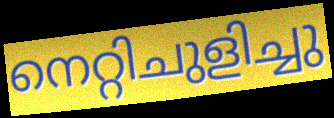
നെറ്റിചുളിച്ചു